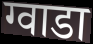
ग्वाडा